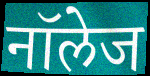
नॉलेज